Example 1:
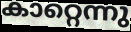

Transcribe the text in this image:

കാറ്റെന്നു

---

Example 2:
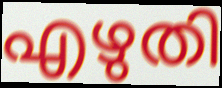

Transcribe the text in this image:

എഴുതി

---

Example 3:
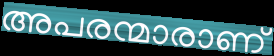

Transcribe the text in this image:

അപരന്മാരാണ്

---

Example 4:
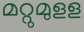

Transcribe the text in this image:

മറ്റുമുളള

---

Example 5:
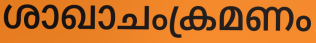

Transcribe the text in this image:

ശാഖാചംക്രമണം